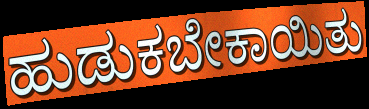
ಹುಡುಕಬೇಕಾಯಿತು